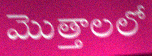
మొత్తాలలో